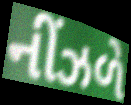
નીંઝળે